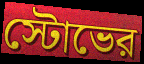
স্টোভের